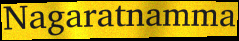
Nagaratnamma